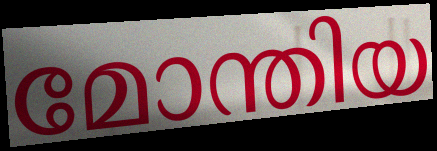
മോന്തിയ